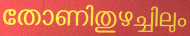
തോണിതുഴച്ചിലും